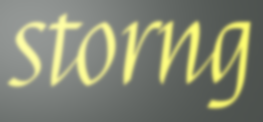
storng